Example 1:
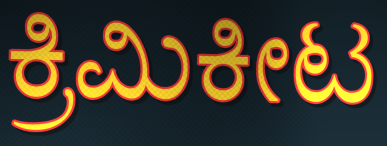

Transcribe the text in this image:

ಕ್ರಿಮಿಕೀಟ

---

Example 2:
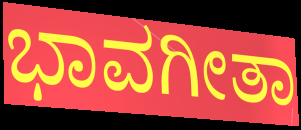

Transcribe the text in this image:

ಭಾವಗೀತಾ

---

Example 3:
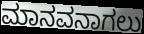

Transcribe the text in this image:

ಮಾನವನಾಗಲು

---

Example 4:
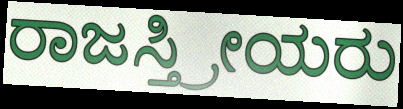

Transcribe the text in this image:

ರಾಜಸ್ತ್ರೀಯರು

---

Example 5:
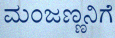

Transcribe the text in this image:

ಮಂಜಣ್ಣನಿಗೆ